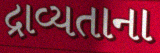
દ્રાવ્યતાના